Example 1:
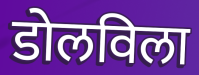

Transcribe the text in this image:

डोलविला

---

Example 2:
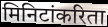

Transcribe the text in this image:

मिनिटांकरिता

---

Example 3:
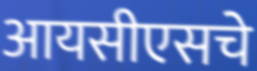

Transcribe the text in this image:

आयसीएसचे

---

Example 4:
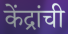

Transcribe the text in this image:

केंद्रांची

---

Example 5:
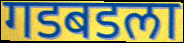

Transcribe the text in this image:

गडबडला